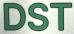
DST